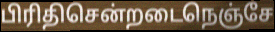
பிரிதிசென்றடைநெஞ்சே